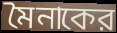
মৈনাকের